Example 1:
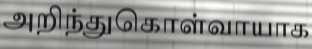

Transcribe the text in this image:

அறிந்துகொள்வாயாக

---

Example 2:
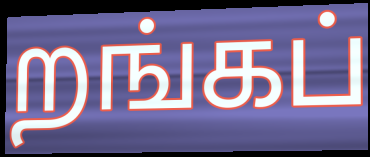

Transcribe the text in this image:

றங்கப்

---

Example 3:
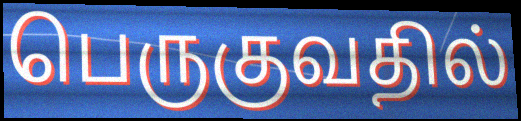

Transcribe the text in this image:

பெருகுவதில்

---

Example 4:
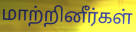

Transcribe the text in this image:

மாற்றினீர்கள்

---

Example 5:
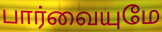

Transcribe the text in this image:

பார்வையுமே